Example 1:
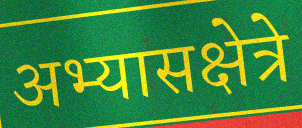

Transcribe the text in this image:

अभ्यासक्षेत्रे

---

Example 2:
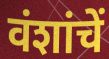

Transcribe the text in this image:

वंशांचें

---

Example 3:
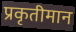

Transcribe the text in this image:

प्रकृतीमान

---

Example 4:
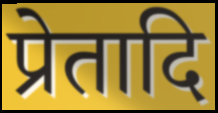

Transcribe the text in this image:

प्रेतादि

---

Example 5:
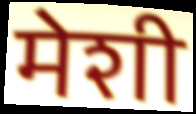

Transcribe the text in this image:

मेशी